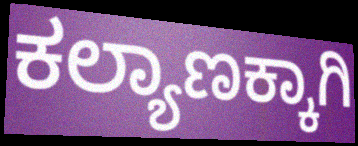
ಕಲ್ಯಾಣಕ್ಕಾಗಿ